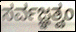
ಸರ್ವಜ್ಞತ್ವಂ